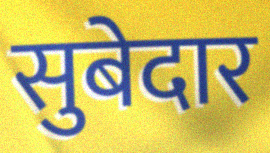
सुबेदार